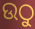
ଉଠୁ